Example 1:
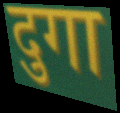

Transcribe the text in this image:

दुगा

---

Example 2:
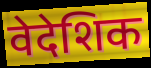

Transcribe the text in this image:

वेदेशिक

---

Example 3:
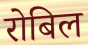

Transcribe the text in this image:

रोबिल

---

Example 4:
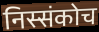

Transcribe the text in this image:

निस्संकोच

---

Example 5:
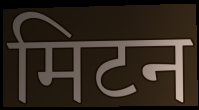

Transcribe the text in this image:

मिटन